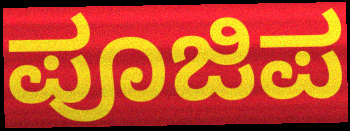
ಪೂಜಿಪ